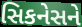
સિકનેસને